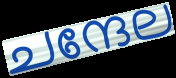
ചന്ദേല